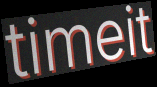
timeit